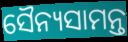
ସୈନ୍ୟସାମନ୍ତ